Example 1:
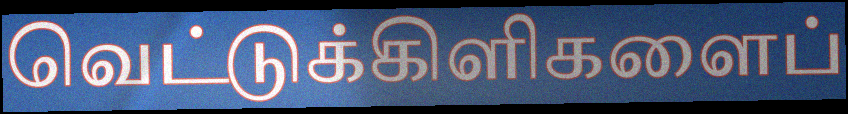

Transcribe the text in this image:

வெட்டுக்கிளிகளைப்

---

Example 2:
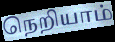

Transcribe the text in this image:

நெறியாம்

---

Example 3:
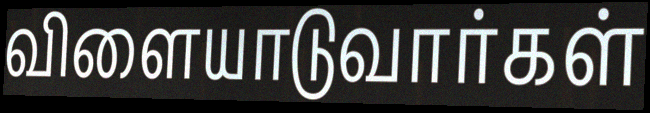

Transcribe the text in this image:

விளையாடுவார்கள்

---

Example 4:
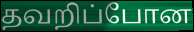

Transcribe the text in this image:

தவறிப்போன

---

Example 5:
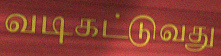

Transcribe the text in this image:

வடிகட்டுவது